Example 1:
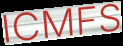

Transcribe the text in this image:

ICMFS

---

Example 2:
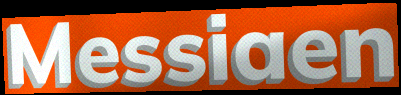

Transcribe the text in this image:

Messiaen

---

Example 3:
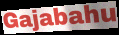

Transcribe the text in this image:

Gajabahu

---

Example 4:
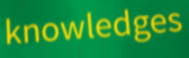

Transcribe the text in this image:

knowledges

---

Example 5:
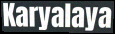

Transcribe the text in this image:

Karyalaya